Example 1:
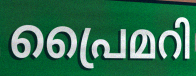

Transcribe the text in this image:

പ്രൈമറി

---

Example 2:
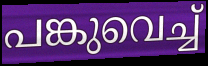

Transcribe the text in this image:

പങ്കുവെച്ച്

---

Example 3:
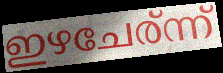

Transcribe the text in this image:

ഇഴചേര്ന്ന്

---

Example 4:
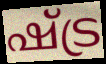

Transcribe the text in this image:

ഷ്ട്ര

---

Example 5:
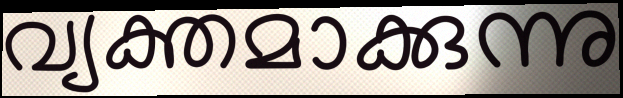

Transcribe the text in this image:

വ്യക്തമാക്കുന്നു